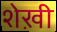
शेख़ी